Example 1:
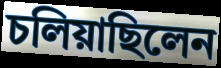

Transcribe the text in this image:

চলিয়াছিলেন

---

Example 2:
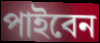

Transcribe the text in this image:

পাইবেন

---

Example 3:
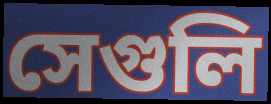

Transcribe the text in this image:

সেগুলি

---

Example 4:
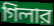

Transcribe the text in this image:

গিলার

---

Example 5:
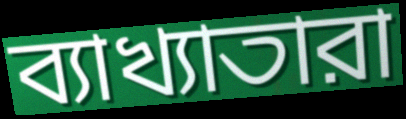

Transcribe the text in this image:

ব্যাখ্যাতারা